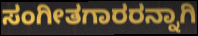
ಸಂಗೀತಗಾರರನ್ನಾಗಿ